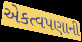
એકત્વપણાની